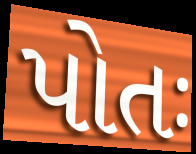
પોતઃ